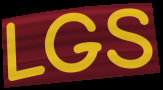
LGS